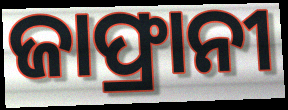
ଜାଫ୍ରାନୀ